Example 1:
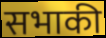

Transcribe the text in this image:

सभाकी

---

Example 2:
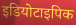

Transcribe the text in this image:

इडियोटाइपिक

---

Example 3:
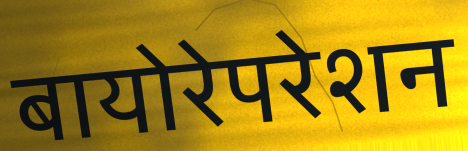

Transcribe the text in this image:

बायोरेपरेशन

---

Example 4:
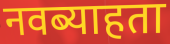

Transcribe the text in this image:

नवब्याहता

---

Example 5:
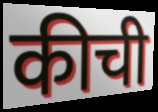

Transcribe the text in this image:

कीची